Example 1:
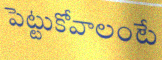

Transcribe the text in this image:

పెట్టుకోవాలంటే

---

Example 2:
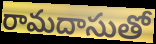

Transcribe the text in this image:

రామదాసుతో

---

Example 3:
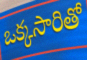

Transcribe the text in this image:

ఒక్కసారితో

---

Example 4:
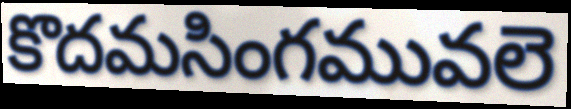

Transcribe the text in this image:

కొదమసింగమువలె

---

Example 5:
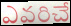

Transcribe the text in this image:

ఎవరిచే